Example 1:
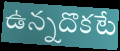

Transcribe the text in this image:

ఉన్నదొకటే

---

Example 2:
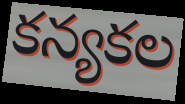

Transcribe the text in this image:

కన్యకల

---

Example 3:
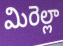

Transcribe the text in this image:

మిరెల్లా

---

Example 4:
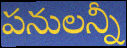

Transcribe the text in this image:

పనులన్నీ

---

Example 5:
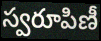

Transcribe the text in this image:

స్వరూపిణీ